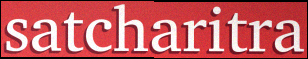
satcharitra